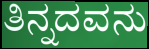
ತಿನ್ನದವನು